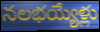
నలభయ్యేళ్లు